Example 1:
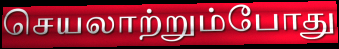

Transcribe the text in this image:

செயலாற்றும்போது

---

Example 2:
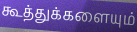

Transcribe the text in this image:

கூத்துக்களையும்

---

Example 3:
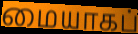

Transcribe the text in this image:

மையாகப்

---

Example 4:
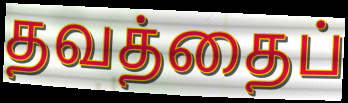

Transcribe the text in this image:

தவத்தைப்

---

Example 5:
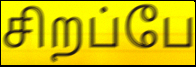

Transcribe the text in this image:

சிறப்பே